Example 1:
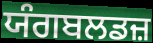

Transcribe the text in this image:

ਯੰਗਬਲਡਜ਼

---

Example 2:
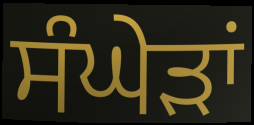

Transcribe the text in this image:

ਸੰਘੇੜਾਂ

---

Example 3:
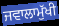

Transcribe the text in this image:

ਜਵਾਲਾਮੁੱਖੀ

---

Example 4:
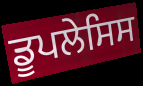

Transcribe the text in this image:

ਡੂਪਲੇਸਿਸ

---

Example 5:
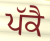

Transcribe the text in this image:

ਪੱਕੈ